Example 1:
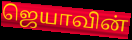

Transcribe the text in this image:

ஜெயாவின்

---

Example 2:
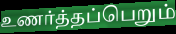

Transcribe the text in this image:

உணர்த்தப்பெறும்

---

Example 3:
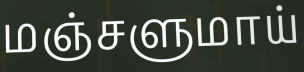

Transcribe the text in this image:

மஞ்சளுமாய்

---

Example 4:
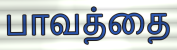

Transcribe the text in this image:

பாவத்தை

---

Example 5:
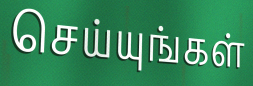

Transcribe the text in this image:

செய்யுங்கள்